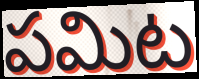
పమిట